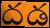
దడ